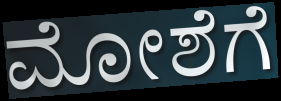
ಮೋಶೆಗೆ